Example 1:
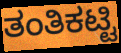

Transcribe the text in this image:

ತಂತಿಕಟ್ಟಿ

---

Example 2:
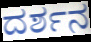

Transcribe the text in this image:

ದರ್ಶನ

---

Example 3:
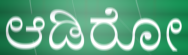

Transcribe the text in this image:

ಆಡಿರೋ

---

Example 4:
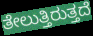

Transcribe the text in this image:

ತೇಲುತ್ತಿರುತ್ತದೆ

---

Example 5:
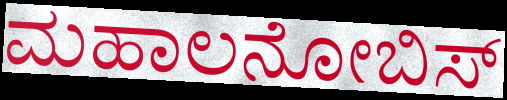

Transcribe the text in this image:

ಮಹಾಲನೋಬಿಸ್